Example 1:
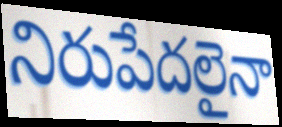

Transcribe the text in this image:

నిరుపేదలైనా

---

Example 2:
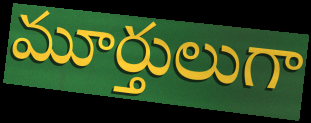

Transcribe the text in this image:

మూర్తులుగా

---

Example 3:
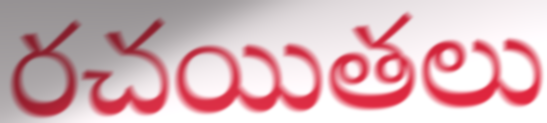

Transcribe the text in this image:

రచయితలు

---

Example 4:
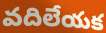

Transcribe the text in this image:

వదిలేయక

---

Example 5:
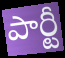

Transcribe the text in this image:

పార్టీ